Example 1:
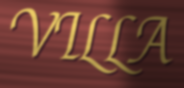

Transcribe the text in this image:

VILLA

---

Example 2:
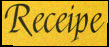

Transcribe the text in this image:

Receipe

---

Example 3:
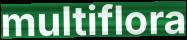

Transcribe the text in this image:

multiflora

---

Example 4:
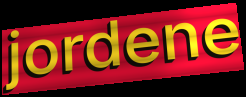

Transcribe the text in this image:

jordene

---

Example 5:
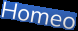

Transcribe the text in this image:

Homeo